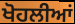
ਖੋਹਲੀਆਂ